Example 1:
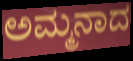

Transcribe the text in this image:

ಅಮ್ಮನಾದ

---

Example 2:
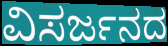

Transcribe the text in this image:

ವಿಸರ್ಜನದ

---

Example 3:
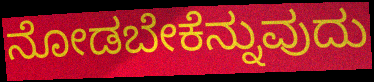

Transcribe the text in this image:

ನೋಡಬೇಕೆನ್ನುವುದು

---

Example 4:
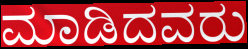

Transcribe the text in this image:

ಮಾಡಿದವರು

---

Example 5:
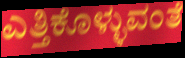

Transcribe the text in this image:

ಎತ್ತಿಕೊಳ್ಳುವಂತೆ